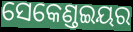
ସେକେଣ୍ଡଇୟର